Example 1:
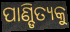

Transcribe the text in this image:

ପାଣ୍ଡିତ୍ୟକୁ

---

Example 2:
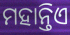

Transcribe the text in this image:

ମହାନ୍ତିଏ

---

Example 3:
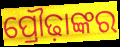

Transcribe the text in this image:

ପ୍ରୌଢ଼ାଙ୍କର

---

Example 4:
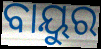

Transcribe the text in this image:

ବାୟୁର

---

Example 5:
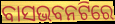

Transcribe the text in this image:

ବାସଭବନଟିରେ